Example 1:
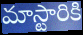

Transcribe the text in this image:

మాస్టారికి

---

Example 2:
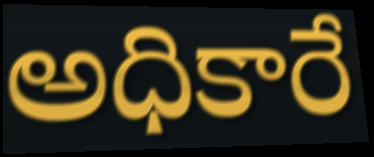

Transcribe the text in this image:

అధికారే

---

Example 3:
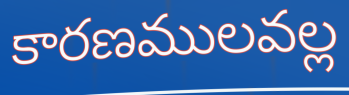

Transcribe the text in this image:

కారణములవల్ల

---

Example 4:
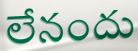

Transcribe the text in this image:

లేనందు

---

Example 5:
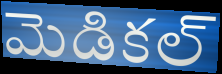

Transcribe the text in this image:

మెడికల్